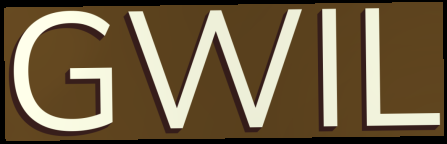
GWIL